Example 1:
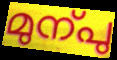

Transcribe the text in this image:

മുന്പു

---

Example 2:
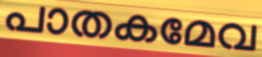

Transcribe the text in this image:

പാതകമേവ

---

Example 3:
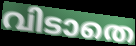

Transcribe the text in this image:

വിടാതെ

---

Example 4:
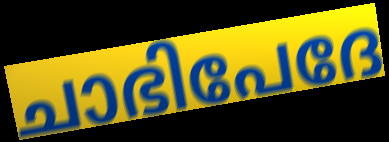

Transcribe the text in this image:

ചാഭിപേദേ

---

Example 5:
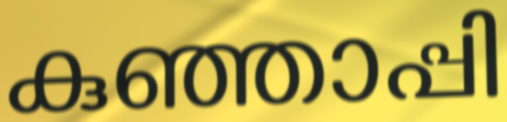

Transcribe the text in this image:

കുഞ്ഞാപ്പി